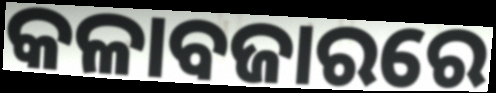
କଳାବଜାରରେ